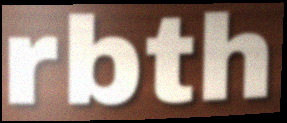
rbth